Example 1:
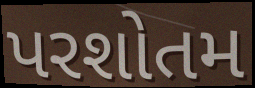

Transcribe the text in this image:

પરશોતમ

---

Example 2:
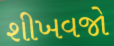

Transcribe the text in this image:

શીખવજો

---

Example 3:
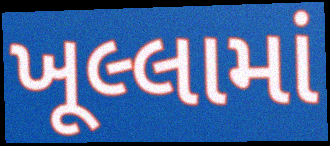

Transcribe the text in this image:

ખૂલ્લામાં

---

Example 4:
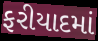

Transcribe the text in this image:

ફરીયાદમાં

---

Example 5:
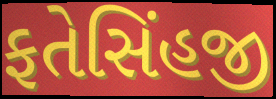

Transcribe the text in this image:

ફતેસિંહજી